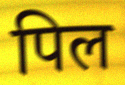
पिल